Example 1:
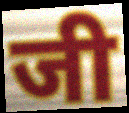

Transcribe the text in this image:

जी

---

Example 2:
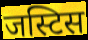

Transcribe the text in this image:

जस्टिस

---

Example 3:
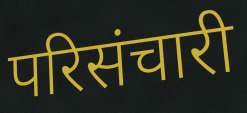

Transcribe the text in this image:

परिसंचारी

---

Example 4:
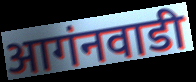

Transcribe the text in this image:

आगंनवाडी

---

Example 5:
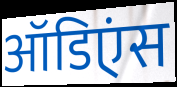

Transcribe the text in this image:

ऑडिएंस